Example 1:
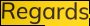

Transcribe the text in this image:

Regards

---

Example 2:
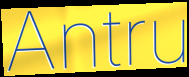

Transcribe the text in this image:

Antru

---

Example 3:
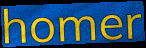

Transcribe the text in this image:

homer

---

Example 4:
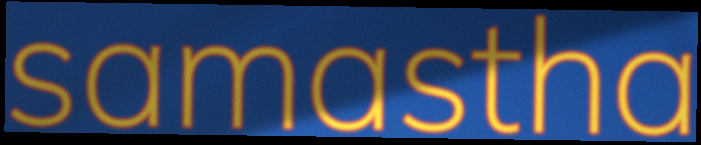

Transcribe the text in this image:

samastha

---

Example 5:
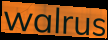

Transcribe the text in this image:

walrus